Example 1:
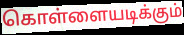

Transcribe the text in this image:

கொள்ளையடிக்கும்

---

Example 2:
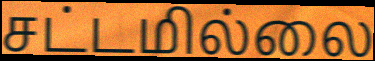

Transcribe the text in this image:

சட்டமில்லை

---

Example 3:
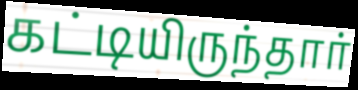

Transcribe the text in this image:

கட்டியிருந்தார்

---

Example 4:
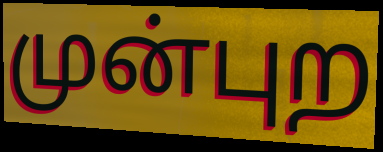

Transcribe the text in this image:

முன்புற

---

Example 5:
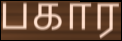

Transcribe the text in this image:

பகார